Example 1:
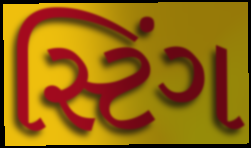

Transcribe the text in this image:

સ્ટિંગ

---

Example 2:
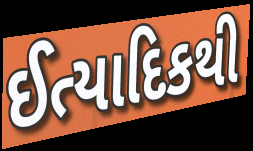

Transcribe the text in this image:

ઈત્યાદિકથી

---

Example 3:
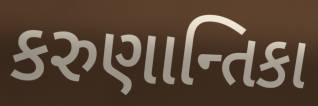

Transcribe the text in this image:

કરુણાન્તિકા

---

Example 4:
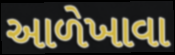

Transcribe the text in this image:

આળેખાવા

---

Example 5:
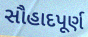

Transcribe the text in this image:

સૌહાદપૂર્ણ